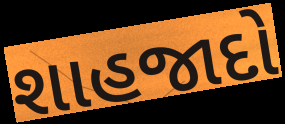
શાહજાદો